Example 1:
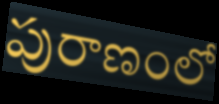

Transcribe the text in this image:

పురాణంలో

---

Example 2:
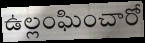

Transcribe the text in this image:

ఉల్లంఘించారో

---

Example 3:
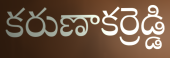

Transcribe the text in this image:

కరుణాకర్రెడ్డి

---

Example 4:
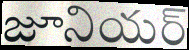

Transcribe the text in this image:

జూనియర్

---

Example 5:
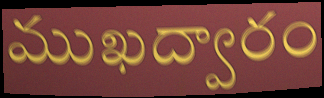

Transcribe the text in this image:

ముఖద్వారం